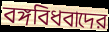
বঙ্গবিধবাদের